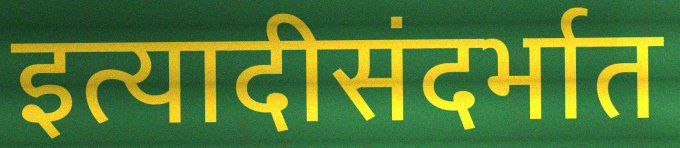
इत्यादीसंदर्भात